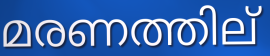
മരണത്തില്